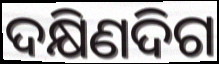
ଦକ୍ଷିଣଦିଗ